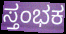
ಸ್ತಂಭಕ